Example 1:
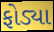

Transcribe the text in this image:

ફોડ્યા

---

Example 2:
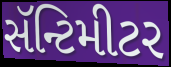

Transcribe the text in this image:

સૅન્ટિમીટર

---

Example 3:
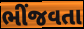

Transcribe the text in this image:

ભીંજવતા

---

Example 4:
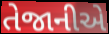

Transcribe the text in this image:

તેજાનીએ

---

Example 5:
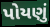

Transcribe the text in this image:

પોયણું